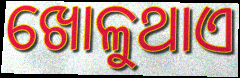
ଖୋଳୁଥାଏ